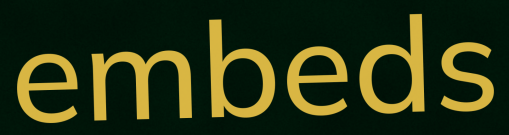
embeds